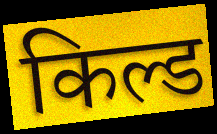
किल्ड